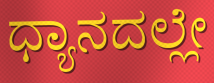
ಧ್ಯಾನದಲ್ಲೇ